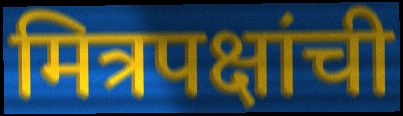
मित्रपक्षांची